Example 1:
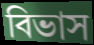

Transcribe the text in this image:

বিভাস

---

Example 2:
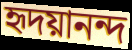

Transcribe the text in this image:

হৃদয়ানন্দ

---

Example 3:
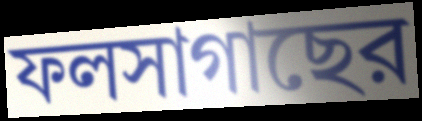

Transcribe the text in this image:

ফলসাগাছের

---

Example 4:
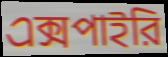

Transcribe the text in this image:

এক্সপাইরি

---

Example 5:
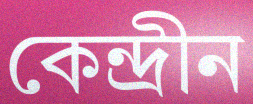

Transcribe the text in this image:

কেন্দ্রীন